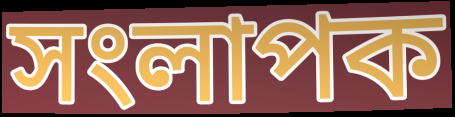
সংলাপক